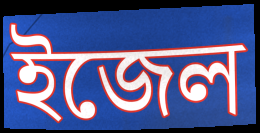
ইজেল